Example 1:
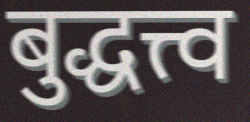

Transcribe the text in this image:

बुद्धत्त्व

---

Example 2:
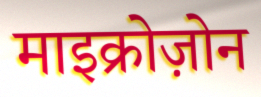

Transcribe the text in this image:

माइक्रोज़ोन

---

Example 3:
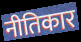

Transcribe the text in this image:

नीतिकार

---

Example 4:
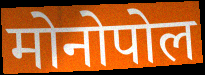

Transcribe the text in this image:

मोनोपोल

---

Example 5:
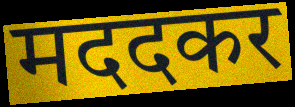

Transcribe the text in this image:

मददकर